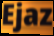
Ejaz